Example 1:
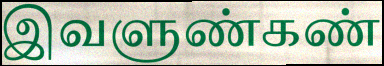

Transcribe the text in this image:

இவளுண்கண்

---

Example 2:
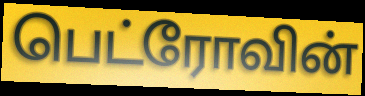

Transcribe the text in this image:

பெட்ரோவின்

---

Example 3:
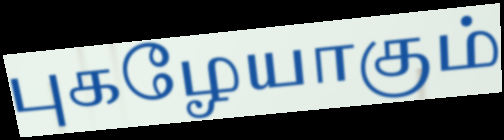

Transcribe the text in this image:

புகழேயாகும்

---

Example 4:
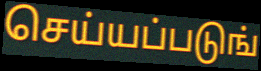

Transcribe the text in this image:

செய்யப்படுங்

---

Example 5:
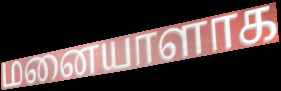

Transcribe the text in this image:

மனையாளாக